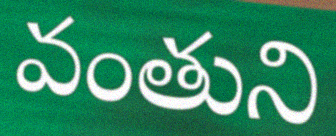
వంతుని